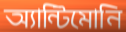
অ্যান্টিমোনি